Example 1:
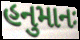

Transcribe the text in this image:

હનુમાનઃ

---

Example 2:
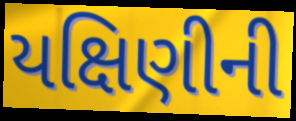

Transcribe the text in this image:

યક્ષિણીની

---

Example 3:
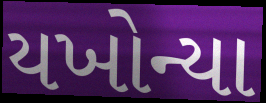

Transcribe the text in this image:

યખોન્યા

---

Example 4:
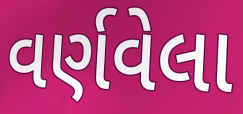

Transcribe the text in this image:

વર્ણવેલા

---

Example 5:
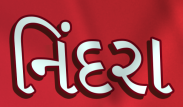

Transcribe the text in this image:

નિંદરા